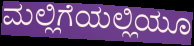
ಮಲ್ಲಿಗೆಯಲ್ಲಿಯೂ